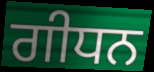
ਗੀਧਨ